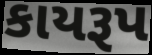
કાયરૂપ